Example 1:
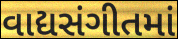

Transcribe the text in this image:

વાદ્યસંગીતમાં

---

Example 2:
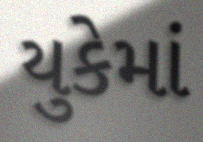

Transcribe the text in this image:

યુકેમાં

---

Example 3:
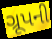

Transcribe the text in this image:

ગ્રૂપની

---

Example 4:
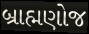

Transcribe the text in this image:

બ્રાહ્મણોજ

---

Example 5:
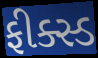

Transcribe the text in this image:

ફીક્સ્ડ